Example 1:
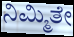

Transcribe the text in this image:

ನಿಮ್ಮಿತೇ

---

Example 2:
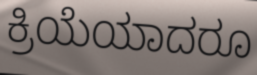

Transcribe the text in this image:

ಕ್ರಿಯೆಯಾದರೂ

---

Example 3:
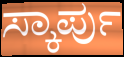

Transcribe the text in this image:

ಸ್ಕಾರ್ಪು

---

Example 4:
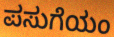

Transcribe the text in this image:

ಪಸುಗೆಯಂ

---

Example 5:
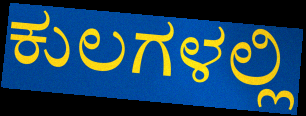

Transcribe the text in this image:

ಕುಲಗಳಲ್ಲಿ